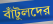
বাঁটুলদের